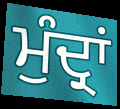
ਮੁੰਦ੍ਰਾਂ